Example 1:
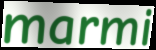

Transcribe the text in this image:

marmi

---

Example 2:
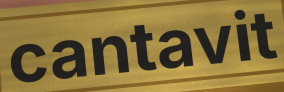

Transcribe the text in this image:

cantavit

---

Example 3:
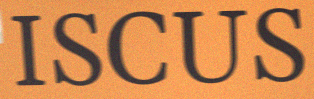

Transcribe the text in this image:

ISCUS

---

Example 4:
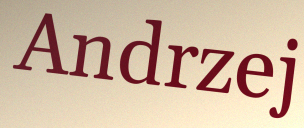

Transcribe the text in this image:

Andrzej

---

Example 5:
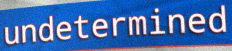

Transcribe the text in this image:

undetermined